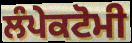
ਲੰਪੇਕਟੋਮੀ